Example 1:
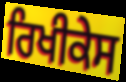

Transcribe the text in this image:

ਰਿਖੀਕੇਸ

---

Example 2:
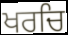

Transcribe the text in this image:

ਖਰਚਿ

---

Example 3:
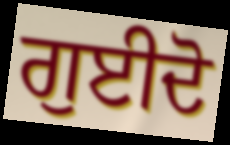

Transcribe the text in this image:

ਗੁਈਦੋ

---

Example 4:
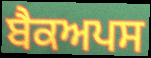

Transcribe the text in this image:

ਬੈਕਅਪਸ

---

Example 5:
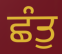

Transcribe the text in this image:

ਛੰਤੁ